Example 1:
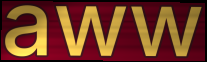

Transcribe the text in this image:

aww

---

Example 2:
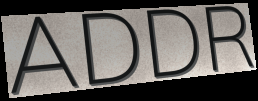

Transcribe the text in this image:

ADDR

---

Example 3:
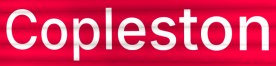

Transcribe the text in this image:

Copleston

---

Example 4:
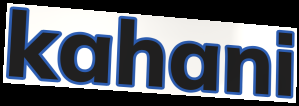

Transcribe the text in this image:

kahani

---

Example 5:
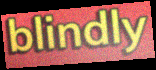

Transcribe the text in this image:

blindly